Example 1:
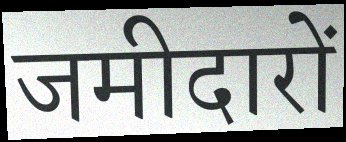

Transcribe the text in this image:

जमीदारों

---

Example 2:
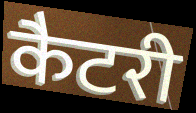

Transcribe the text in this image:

कैटरी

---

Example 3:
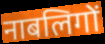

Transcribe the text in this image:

नाबलिगों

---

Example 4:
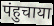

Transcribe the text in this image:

पंहुचाया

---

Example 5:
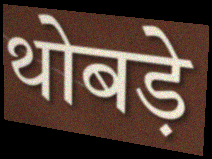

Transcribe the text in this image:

थोबड़े